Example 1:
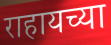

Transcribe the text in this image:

राहायच्या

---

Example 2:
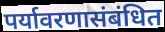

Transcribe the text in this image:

पर्यावरणासंबंधित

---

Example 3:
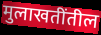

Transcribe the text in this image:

मुलाखतींतील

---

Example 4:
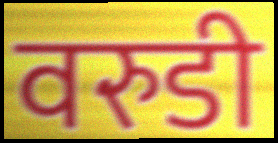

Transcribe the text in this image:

वरुडी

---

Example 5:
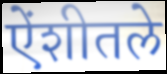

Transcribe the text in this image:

ऐंशीतले